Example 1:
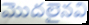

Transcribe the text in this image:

మొదలైనవి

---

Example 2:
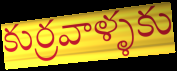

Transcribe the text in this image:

కుర్రవాళ్ళకు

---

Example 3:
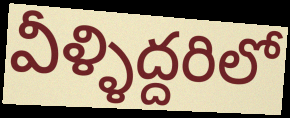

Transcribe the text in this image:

వీళ్ళిద్దరిలో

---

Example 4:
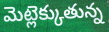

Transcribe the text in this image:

మెట్లెక్కుతున్న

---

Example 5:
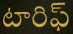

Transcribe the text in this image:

టారిఫ్